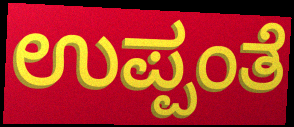
ಉಪ್ಪಂತೆ